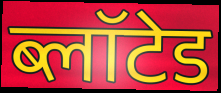
ब्लॉटेड